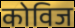
कोविज